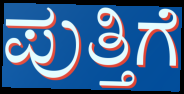
ಪುತ್ತಿಗೆ